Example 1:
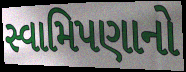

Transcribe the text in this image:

સ્વામિપણાનો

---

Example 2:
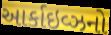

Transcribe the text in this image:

આર્કાઇવ્ઝનો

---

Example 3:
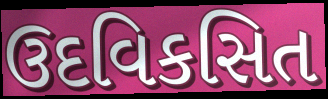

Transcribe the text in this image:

ઉદવિકસિત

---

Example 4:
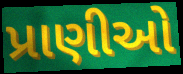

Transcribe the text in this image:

પ્રાણીઓ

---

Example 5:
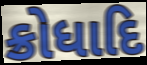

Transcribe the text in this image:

ક્રોધાદિ